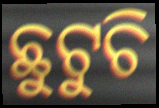
ଛୁଟୁଚି